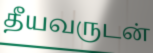
தீயவருடன்